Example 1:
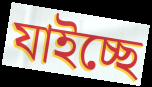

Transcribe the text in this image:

যাইচ্ছে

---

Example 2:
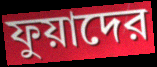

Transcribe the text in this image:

ফুয়াদের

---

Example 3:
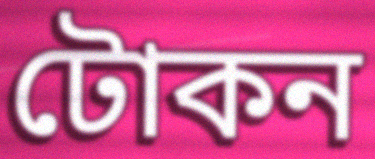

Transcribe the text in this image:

টোকন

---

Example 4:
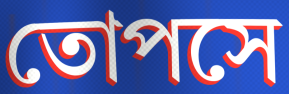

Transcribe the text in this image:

তোপসে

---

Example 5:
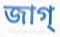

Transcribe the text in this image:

জাগ্